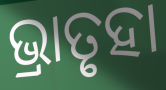
ଭ୍ରାତୃହା